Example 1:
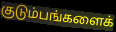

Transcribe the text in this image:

குடும்பங்களைக்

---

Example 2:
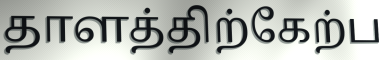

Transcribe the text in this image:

தாளத்திற்கேற்ப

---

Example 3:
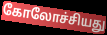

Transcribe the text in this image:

கோலோச்சியது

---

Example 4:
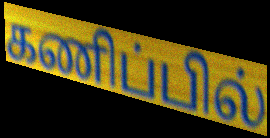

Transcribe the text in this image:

கணிப்பில்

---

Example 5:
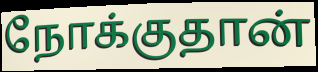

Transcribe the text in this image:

நோக்குதான்